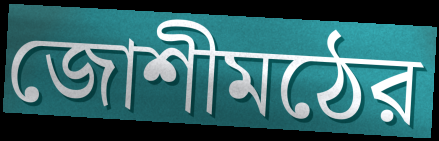
জোশীমঠের